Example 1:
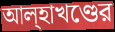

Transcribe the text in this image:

আল্হাখণ্ডের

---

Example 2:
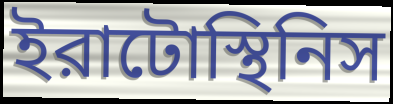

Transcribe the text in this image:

ইরাটোস্থিনিস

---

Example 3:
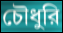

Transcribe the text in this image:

চৌধুরি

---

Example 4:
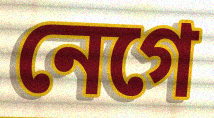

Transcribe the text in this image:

নেগে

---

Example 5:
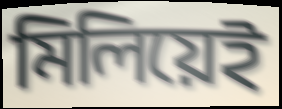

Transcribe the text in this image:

মিলিয়েই